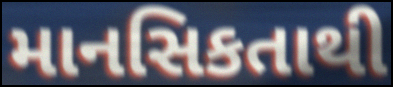
માનસિકતાથી